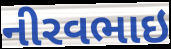
નીરવભાઇ